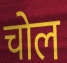
चोल